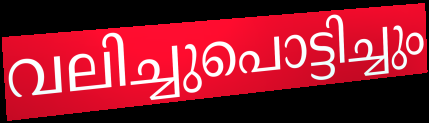
വലിച്ചുപൊട്ടിച്ചും